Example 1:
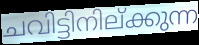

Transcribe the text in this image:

ചവിട്ടിനില്ക്കുന്ന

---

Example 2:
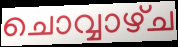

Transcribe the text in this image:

ചൊവ്വാഴ്‌ച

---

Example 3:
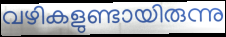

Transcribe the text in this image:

വഴികളുണ്ടായിരുന്നു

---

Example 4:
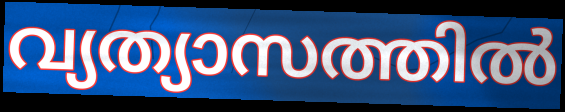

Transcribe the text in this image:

വ്യത്യാസത്തിൽ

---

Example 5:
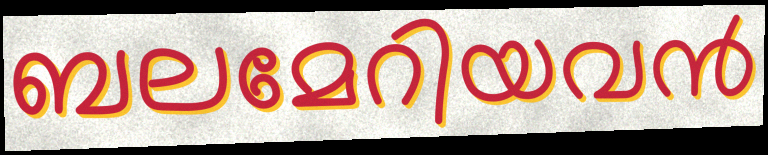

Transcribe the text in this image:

ബലമേറിയവൻ